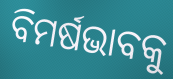
ବିମର୍ଷଭାବକୁ